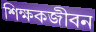
শিক্ষকজীবন